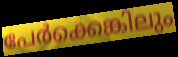
പേർക്കെങ്കിലും